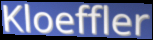
Kloeffler